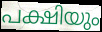
പക്ഷിയും